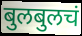
बुलबुलचं